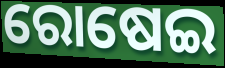
ରୋଷେଇ